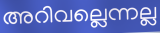
അറിവല്ലെന്നല്ല